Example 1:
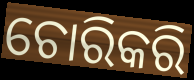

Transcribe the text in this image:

ଚୋରିକରି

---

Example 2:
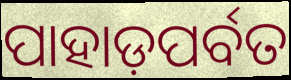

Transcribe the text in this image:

ପାହାଡ଼ପର୍ବତ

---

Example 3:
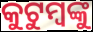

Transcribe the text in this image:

କୁଟୁମ୍ବଙ୍କୁ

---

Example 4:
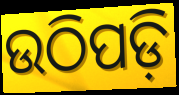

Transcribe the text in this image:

ଉଠିପଡ଼ି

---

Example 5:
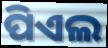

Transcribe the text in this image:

ପିଏଲ